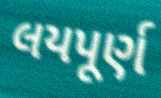
લયપૂર્ણ